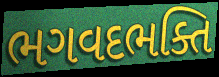
ભગવદભક્તિ